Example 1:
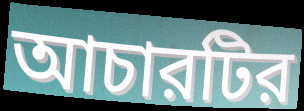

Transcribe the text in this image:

আচারটির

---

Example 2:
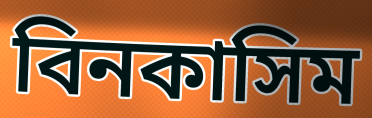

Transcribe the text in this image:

বিনকাসিম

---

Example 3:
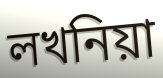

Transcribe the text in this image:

লখনিয়া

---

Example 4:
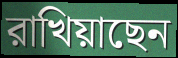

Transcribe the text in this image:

রাখিয়াছেন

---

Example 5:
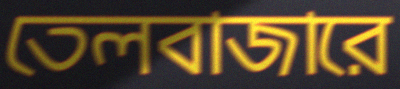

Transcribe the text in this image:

তেলবাজারে